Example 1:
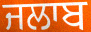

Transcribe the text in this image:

ਜਲਾਬ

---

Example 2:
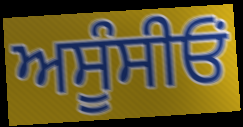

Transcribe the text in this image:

ਅਸੂੰਸੀਓਂ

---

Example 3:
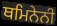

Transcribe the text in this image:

ਥਮਿਨੇਨੀ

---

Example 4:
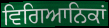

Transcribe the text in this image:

ਵਿਗਿਆਨਿਕਾਂ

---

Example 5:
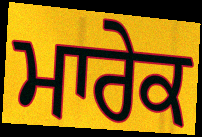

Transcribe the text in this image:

ਮਾਰੇਕ